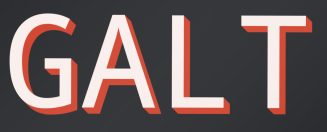
GALT